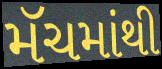
મૅચમાંથી